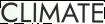
CLIMATE